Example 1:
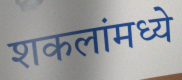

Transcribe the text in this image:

शकलांमध्ये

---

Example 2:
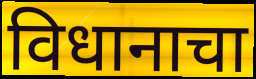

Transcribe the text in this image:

विधानाचा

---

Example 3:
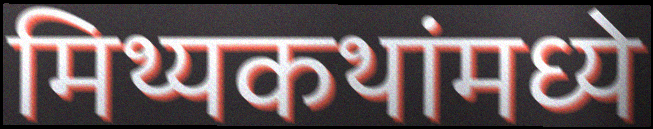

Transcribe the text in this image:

मिथ्यकथांमध्ये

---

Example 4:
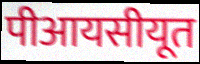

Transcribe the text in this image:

पीआयसीयूत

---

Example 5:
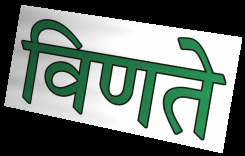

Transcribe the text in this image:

विणते